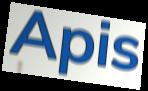
Apis